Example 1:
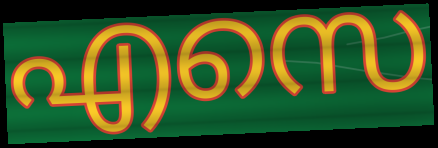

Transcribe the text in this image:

എസെ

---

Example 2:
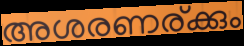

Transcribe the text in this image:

അശരണര്ക്കും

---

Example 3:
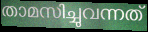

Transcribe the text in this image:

താമസിച്ചുവന്നത്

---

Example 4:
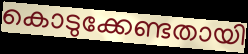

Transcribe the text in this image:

കൊടുക്കേണ്ടതായി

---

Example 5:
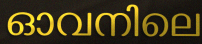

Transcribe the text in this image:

ഓവനിലെ